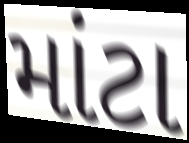
માંટા